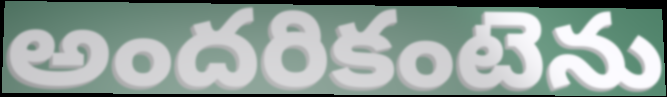
అందరికంటెను